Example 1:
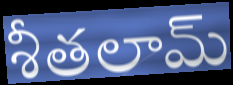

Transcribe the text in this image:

శీతలామ్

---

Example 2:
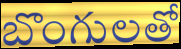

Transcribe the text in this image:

బొంగులతో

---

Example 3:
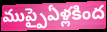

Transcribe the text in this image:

ముప్పైఏళ్లకింద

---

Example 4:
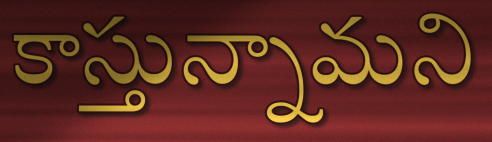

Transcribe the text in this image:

కాస్తున్నామని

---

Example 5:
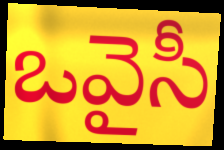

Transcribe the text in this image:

ఒవైసీ